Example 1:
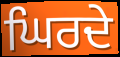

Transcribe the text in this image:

ਘਿਰਦੇ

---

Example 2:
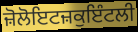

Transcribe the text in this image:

ਜ਼ੋਲੋਇਟਜ਼ਕੁਇੰਟਲੀ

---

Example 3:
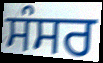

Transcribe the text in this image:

ਸੰਸਰ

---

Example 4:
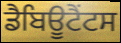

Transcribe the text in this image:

ਡੈਬਿਊਟੈਂਟਸ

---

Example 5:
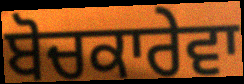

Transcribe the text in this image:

ਬੋਚਕਾਰੇਵਾ